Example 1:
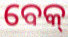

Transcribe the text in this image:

ବେକ୍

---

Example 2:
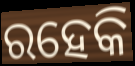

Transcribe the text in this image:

ରହେକି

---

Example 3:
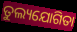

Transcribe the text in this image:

ତୁଲ୍ୟଯୋଗିତା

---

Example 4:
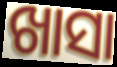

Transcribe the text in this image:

ଖାସା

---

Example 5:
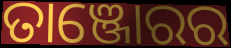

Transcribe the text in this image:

ତାଞ୍ଜୋରର